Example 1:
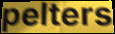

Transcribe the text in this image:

pelters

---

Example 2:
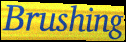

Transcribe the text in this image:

Brushing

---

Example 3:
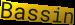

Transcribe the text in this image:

Bassin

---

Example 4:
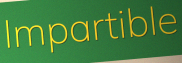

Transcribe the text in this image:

Impartible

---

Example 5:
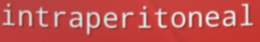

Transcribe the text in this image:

intraperitoneal